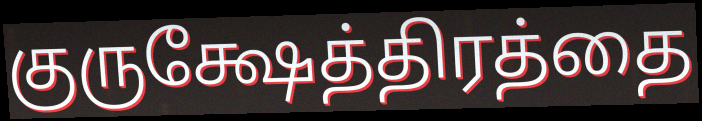
குருக்ஷேத்திரத்தை